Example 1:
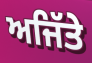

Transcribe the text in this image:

ਅਜਿੱਤੇ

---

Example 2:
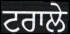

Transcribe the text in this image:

ਟਰਾਲੇ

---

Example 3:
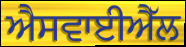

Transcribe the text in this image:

ਐਸਵਾਈਐੱਲ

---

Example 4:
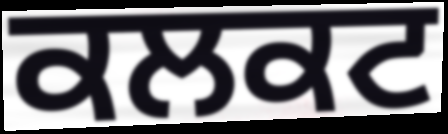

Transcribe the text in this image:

ਕਲਕਟ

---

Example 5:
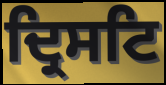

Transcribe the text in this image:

ਦ੍ਰਿਸਟਿ